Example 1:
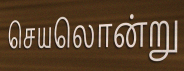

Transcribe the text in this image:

செயலொன்று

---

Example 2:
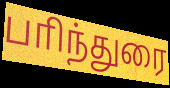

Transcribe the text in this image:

பரிந்துரை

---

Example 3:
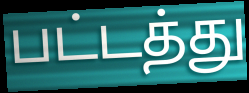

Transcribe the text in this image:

பட்டத்து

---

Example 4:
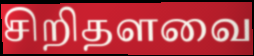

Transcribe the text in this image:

சிறிதளவை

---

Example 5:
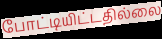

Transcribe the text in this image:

போட்டியிட்டதில்லை